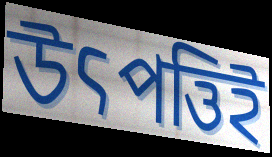
উৎপত্তিই